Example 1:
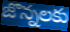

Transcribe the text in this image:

జొన్నలకు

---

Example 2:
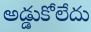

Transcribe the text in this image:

అడ్డుకోలేదు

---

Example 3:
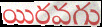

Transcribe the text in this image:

యిరవగు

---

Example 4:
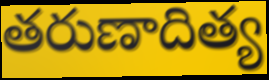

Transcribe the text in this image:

తరుణాదిత్య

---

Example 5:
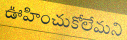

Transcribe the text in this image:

ఊహించుకోలేమని